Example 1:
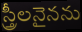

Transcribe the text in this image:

స్త్రీలనైనను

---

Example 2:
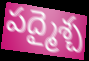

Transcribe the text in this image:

పద్మైశ్చ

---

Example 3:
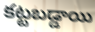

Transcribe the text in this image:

కట్టబడ్డాయి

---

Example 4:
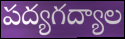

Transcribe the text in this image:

పద్యగద్యాల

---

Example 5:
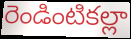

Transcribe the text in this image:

రెండింటికల్లా